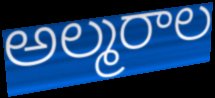
అల్మరాల